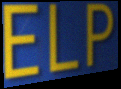
ELP